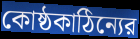
কোষ্ঠকাঠিন্যের